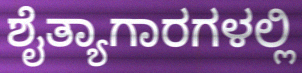
ಶೈತ್ಯಾಗಾರಗಳಲ್ಲಿ